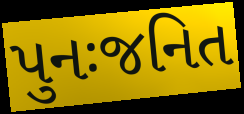
પુનઃજનિત